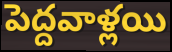
పెద్దవాళ్లయి